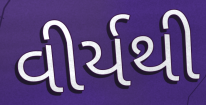
વીર્યથી